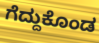
ಗೆದ್ದುಕೊಂಡ